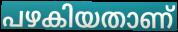
പഴകിയതാണ്